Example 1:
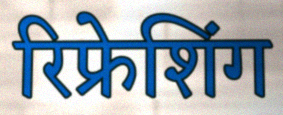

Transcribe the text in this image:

रिफ्रेशिंग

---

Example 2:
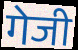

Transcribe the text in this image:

गेजी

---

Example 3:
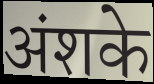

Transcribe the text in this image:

अंशके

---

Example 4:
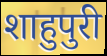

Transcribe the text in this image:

शाहुपुरी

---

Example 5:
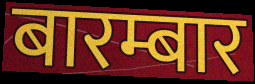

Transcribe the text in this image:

बारम्‍बार